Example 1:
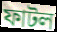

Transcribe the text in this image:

ফাটল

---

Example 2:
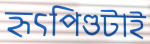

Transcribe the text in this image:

হৃৎপিণ্ডটাই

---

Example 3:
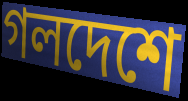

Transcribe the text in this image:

গলদেশে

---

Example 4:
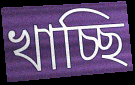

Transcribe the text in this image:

খাচ্ছি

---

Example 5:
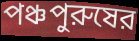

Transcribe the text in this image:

পঞ্চপুরুষের